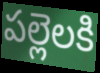
పల్లెలకి